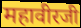
महावीरजी